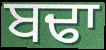
ਬਢਾ